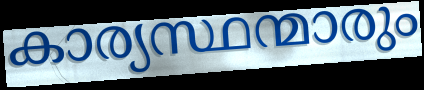
കാര്യസ്ഥന്മാരും